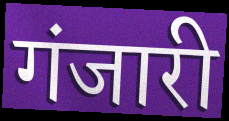
गंजारी